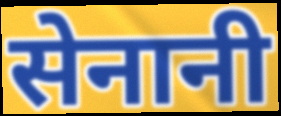
सेनानी